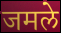
जमले